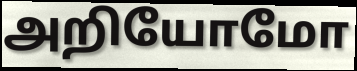
அறியோமோ